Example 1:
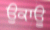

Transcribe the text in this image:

ਉਕਾਊ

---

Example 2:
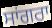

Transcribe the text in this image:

ਸਾਂਗਰਾ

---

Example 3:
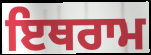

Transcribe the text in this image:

ਇਥਰਾਮ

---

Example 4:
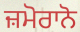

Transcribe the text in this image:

ਜ਼ਮੋਰਾਨੋ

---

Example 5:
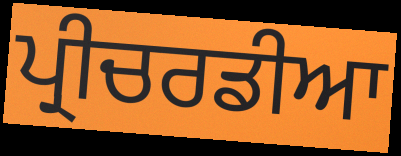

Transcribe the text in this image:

ਪ੍ਰੀਚਰਡੀਆ